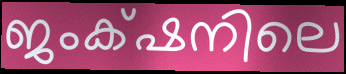
ജംക്‌ഷനിലെ